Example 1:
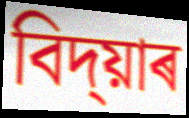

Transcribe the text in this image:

বিদ্য়াৰ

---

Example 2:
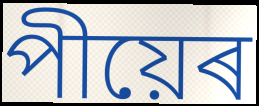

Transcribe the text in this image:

পীয়েৰ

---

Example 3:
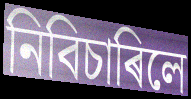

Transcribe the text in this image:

নিবিচাৰিলে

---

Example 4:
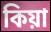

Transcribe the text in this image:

কিয়া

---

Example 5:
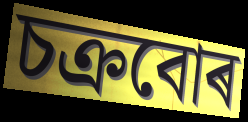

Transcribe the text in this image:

চক্ৰবোৰ